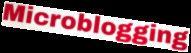
Microblogging